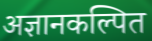
अज्ञानकल्पित